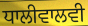
ਧਾਲੀਵਾਲਵੀ